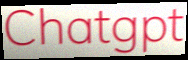
Chatgpt